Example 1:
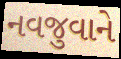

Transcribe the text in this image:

નવજુવાને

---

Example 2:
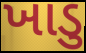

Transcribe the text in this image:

ખાડુ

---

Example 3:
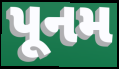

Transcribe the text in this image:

પૂનમ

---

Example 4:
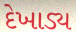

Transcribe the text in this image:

દેખાડ્ય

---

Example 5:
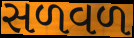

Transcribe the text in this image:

સળવળ